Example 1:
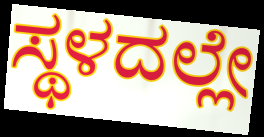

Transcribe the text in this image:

ಸ್ಥಳದಲ್ಲೇ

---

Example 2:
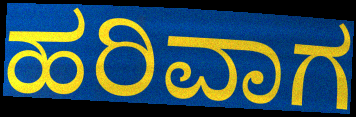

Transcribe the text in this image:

ಹರಿವಾಗ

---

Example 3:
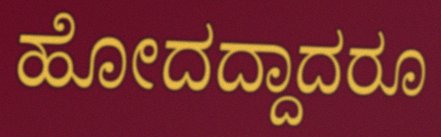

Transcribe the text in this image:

ಹೋದದ್ದಾದರೂ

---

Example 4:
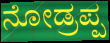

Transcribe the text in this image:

ನೋಡ್ರಪ್ಪ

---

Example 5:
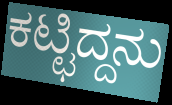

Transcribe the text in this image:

ಕಟ್ಟಿದ್ದನು